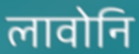
लावोनि